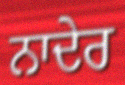
ਨਾਦੇਰ